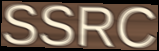
SSRC